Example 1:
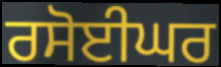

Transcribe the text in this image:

ਰਸੋਈਘਰ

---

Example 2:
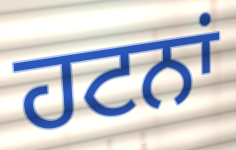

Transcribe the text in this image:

ਹਟਨਾਂ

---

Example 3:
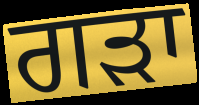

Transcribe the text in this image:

ਗੜਾ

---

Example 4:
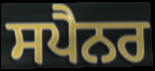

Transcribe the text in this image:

ਸਪੈਨਰ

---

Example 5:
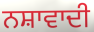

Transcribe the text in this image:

ਨਸ਼ਾਵਾਦੀ